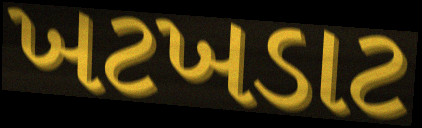
ખટખડાટ